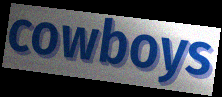
cowboys